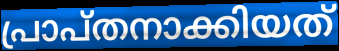
പ്രാപ്തനാക്കിയത്